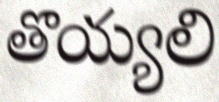
తొయ్యలి